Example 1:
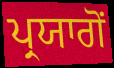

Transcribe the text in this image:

ਪ੍ਰਯਾਗੋਂ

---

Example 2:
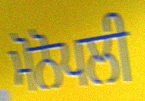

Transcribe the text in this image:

ਮੋਨੋਪਲੀ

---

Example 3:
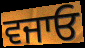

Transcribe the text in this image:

ਵਜਾਓ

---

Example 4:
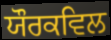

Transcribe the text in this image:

ਯੌਰਕਵਿਲ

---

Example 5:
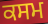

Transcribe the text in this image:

ਕਸਮ